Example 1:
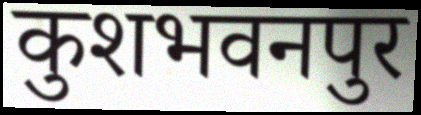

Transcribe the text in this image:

कुशभवनपुर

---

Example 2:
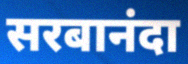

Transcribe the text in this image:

सरबानंदा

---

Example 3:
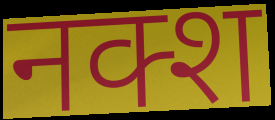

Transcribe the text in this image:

नक्श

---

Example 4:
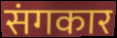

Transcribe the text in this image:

संगकार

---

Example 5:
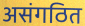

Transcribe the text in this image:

असंगठित